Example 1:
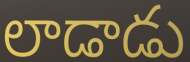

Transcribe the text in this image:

లాడాడు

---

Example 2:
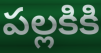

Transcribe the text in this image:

పల్లకికి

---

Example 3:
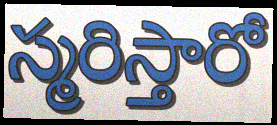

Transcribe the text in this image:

స్మరిస్తారో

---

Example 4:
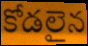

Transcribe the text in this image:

కోడలైన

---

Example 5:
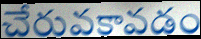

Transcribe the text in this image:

చేరువకావడం